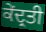
ਕੇਂਦ੍ਰਤੀ